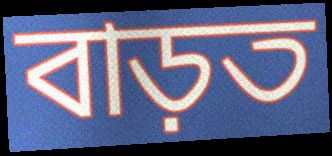
বাড়ত